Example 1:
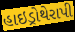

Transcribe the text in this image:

હાઇડ્રોથેરાપી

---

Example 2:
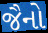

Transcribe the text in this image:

જૈનો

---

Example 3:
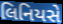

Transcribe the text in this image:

લિનિયસે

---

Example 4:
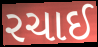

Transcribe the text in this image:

રચાઈ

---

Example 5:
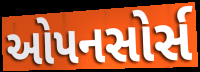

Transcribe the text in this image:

ઓપનસોર્સ